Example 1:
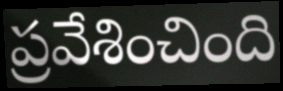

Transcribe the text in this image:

ప్రవేశించింది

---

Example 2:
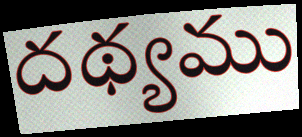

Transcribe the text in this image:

దథ్యము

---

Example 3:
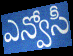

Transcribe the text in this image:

ఎన్వోసీ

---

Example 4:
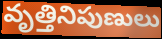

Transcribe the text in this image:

వృత్తినిపుణులు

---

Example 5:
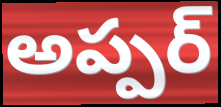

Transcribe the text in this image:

అప్పర్